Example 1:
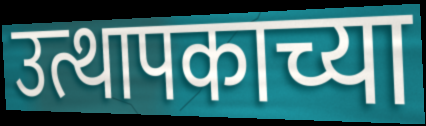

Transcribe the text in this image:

उत्थापकाच्या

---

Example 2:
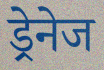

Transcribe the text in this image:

ड्रेनेज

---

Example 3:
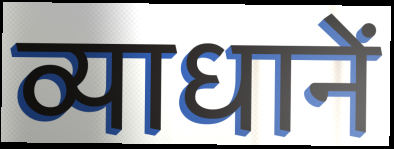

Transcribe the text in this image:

व्याधानें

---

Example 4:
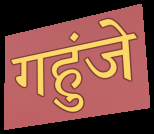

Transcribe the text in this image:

गहुंजे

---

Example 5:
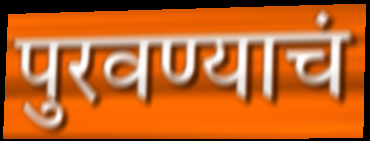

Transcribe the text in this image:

पुरवण्याचं